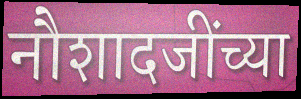
नौशादजींच्या